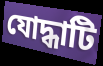
যোদ্ধাটি